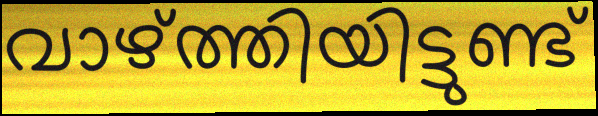
വാഴ്ത്തിയിട്ടുണ്ട്